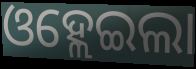
ଓହ୍ଲେଇଲା